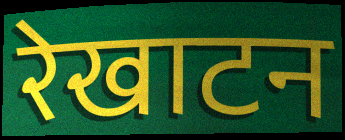
रेखाटन